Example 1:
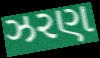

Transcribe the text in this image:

ઝરણ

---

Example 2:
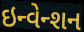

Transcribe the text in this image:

ઇન્વેન્શન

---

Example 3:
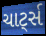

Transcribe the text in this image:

ચાર્ટ્સ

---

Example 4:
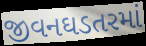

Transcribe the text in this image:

જીવનઘડતરમાં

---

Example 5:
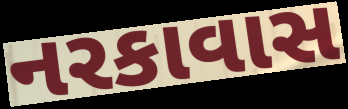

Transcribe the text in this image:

નરકાવાસ